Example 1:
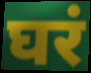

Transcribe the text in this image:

घरं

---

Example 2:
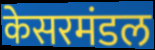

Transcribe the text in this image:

केसरमंडल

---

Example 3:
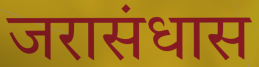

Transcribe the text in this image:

जरासंधास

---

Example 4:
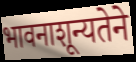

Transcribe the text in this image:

भावनाशून्यतेने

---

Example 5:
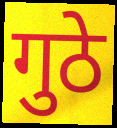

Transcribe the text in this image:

गुठे